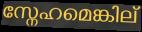
സ്നേഹമെങ്കില്